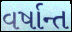
વર્ષાન્ત